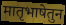
मातृभाषेतुन